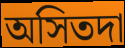
অসিতদা